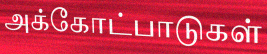
அக்கோட்பாடுகள்